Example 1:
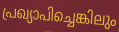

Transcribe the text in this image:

പ്രഖ്യാപിച്ചെങ്കിലും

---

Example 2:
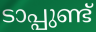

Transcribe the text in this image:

ടാപ്പുണ്ട്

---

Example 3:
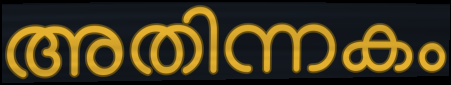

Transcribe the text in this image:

അതിന്നകം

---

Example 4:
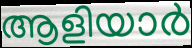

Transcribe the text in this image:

ആളിയാർ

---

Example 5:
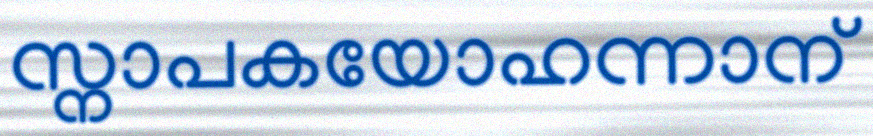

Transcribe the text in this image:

സ്നാപകയോഹന്നാന്